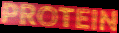
PROTEIN